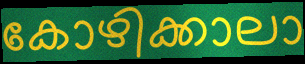
കോഴിക്കാലാ